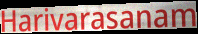
Harivarasanam